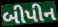
બીપીન